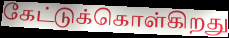
கேட்டுக்கொள்கிறது